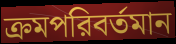
ক্রমপরিবর্তমান